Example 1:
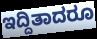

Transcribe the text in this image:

ಇದ್ದಿತಾದರೂ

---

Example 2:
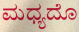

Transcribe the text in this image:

ಮಧ್ಯದೊ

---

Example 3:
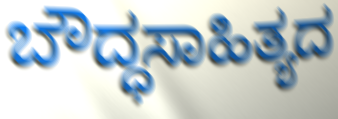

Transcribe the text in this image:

ಬೌದ್ಧಸಾಹಿತ್ಯದ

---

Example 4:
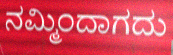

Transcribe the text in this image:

ನಮ್ಮಿಂದಾಗದು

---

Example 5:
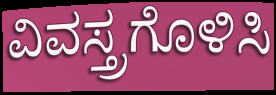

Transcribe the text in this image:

ವಿವಸ್ತ್ರಗೊಳಿಸಿ